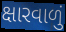
ક્ષારવાળું